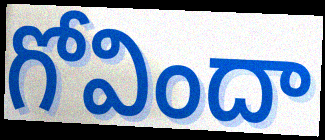
గోవిందా